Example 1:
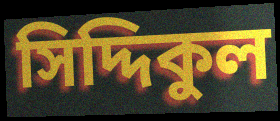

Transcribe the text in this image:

সিদ্দিকুল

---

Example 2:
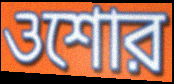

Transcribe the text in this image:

ওশোর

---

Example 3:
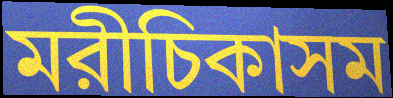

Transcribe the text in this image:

মরীচিকাসম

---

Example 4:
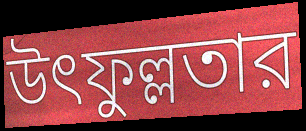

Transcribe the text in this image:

উৎফুল্লতার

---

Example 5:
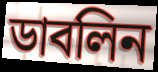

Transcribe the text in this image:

ডাবলিন